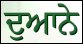
ਦੁਆਨੇ